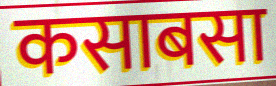
कसाबसा